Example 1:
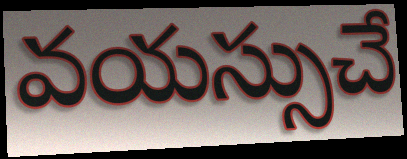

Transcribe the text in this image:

వయస్సుచే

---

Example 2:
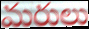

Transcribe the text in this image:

మరులు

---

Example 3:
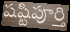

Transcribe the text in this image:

షష్టిపూర్తి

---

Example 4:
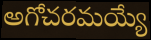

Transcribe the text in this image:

అగోచరమయ్యే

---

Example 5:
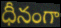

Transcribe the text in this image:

ధీనంగా